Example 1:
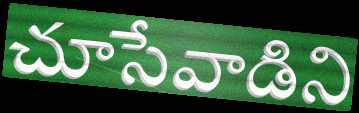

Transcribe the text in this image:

చూసేవాడిని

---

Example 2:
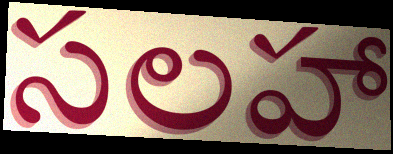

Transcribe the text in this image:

సలహా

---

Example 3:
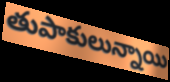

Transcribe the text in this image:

తుపాకులున్నాయి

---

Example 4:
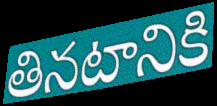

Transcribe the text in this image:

తినటానికి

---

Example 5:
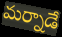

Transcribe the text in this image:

మర్నాడే